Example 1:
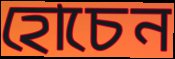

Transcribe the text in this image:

হোচেন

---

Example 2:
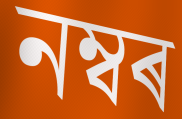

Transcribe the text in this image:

নম্বৰ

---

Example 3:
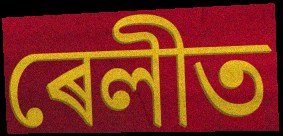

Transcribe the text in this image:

ৰেলীত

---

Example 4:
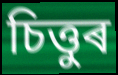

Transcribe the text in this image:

চিত্তুৰ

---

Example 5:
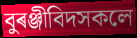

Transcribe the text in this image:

বুৰঞ্জীবিদসকলে